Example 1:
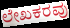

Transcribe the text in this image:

ಲೇಖಕರವು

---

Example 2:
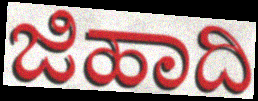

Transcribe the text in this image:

ಜಿಹಾದಿ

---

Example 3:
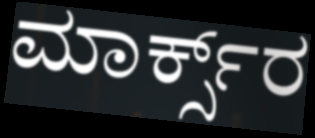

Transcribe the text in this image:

ಮಾರ್ಕ್ಸ್‌ರ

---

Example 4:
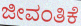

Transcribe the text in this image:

ಜೀವಂತಿಕೆ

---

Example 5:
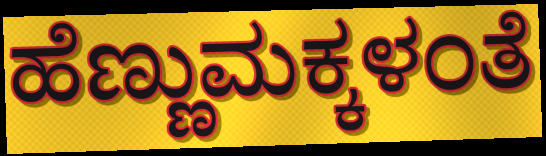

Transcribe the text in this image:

ಹೆಣ್ಣುಮಕ್ಕಳಂತೆ